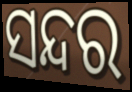
ସନ୍ଦର